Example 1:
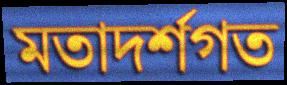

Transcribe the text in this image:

মতাদর্শগত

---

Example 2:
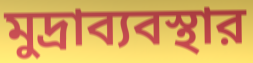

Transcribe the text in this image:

মুদ্রাব্যবস্থার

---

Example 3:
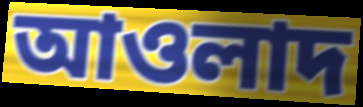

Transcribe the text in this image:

আওলাদ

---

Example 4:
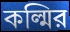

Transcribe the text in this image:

কল্মির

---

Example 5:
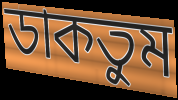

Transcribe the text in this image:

ডাকতুম